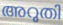
അറുതി